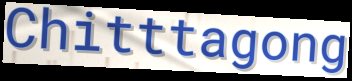
Chitttagong